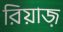
রিয়াজ়